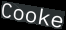
Cooke